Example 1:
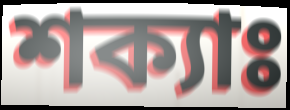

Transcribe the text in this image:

শক্যাঃ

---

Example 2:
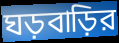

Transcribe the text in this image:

ঘড়বাড়ির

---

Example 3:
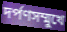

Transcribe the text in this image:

দর্পণসম্মুখে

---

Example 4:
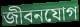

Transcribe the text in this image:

জীবনযোগ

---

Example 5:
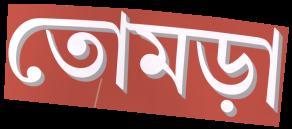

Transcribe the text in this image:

তোমড়া